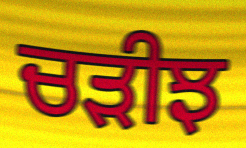
ਚੜੀਝ